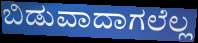
ಬಿಡುವಾದಾಗಲೆಲ್ಲ